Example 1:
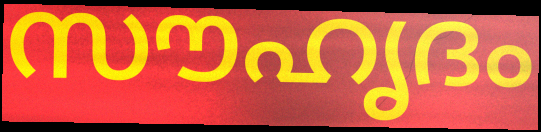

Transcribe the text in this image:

സൗഹൃദം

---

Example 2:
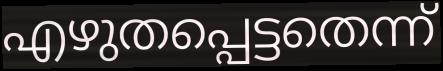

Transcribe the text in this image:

എഴുതപ്പെട്ടതെന്ന്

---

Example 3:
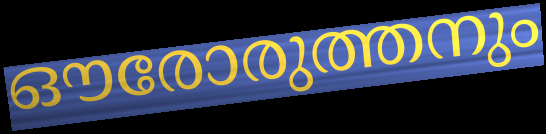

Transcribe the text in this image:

ഔരോരുത്തനും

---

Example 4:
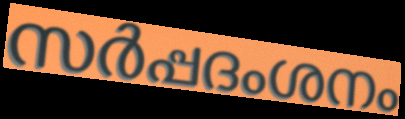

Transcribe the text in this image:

സർപ്പദംശനം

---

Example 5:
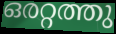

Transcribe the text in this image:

ഒരറ്റത്തു